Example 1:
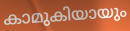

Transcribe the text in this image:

കാമുകിയായും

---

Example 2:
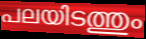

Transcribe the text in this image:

പലയിടത്തും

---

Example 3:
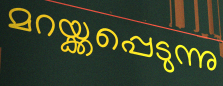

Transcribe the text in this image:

മറയ്ക്കപ്പെടുന്നു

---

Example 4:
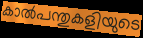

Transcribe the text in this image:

കാൽപന്തുകളിയുടെ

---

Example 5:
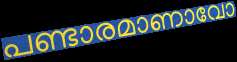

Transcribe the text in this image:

പണ്ടാരമാണാവോ